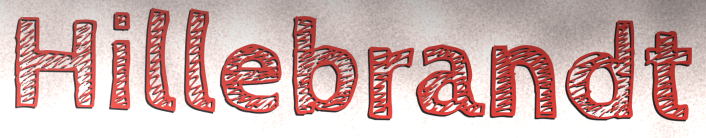
Hillebrandt